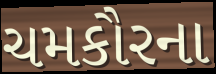
ચમકૌરના